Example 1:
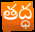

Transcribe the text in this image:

తద్ధ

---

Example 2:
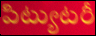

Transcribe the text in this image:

పిట్యుటరీ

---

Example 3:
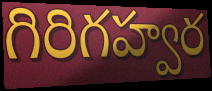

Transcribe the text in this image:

గిరిగహ్వర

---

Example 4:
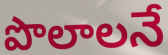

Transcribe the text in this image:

పొలాలనే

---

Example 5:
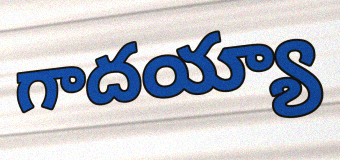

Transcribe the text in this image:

గాదయ్యా